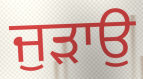
ਜੁੜਾਉ